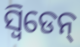
ସ୍ଵିଡେନ୍